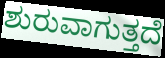
ಶುರುವಾಗುತ್ತದೆ